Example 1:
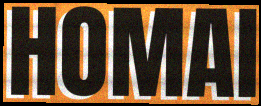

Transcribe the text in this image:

HOMAI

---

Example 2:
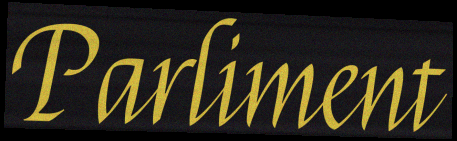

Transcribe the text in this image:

Parliment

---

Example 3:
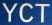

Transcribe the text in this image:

YCT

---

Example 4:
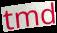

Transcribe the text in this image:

tmd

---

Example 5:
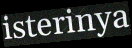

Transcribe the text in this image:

isterinya